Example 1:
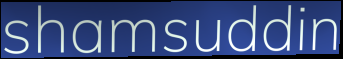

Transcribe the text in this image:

shamsuddin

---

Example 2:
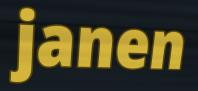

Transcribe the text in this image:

janen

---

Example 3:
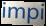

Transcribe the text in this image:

impi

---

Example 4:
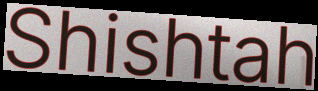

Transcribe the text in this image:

Shishtah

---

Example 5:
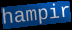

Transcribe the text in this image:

hampir